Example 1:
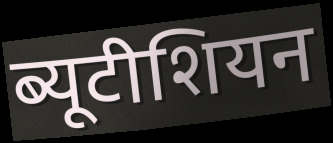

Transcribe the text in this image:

ब्यूटीशियन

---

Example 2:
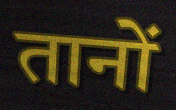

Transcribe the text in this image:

तानों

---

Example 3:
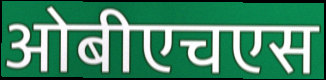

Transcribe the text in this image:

ओबीएचएस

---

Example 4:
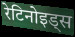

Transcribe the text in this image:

रेटिनोइड्स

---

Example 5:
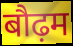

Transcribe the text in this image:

बौढ़म